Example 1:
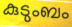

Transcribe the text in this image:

കുടുംബം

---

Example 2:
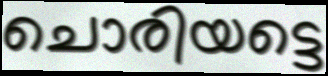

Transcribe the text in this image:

ചൊരിയട്ടെ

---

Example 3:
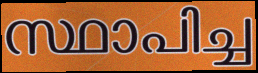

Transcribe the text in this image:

സ്ഥാപിച്ച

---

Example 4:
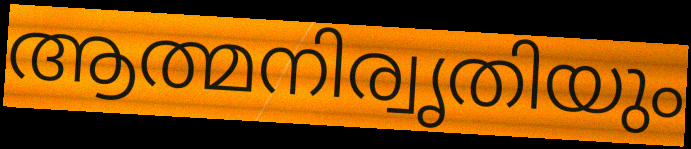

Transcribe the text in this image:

ആത്മനിര്വൃതിയും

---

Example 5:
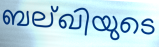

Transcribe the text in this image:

ബല്ഖിയുടെ